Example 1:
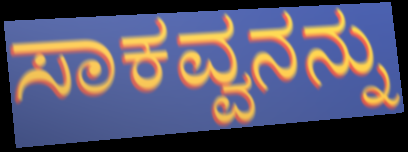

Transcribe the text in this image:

ಸಾಕವ್ವನನ್ನು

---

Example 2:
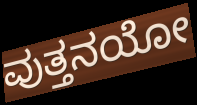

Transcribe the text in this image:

ವುತ್ತನಯೋ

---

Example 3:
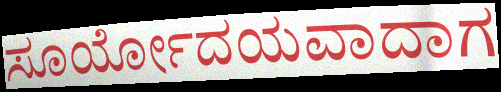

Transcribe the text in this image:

ಸೂರ್ಯೋದಯವಾದಾಗ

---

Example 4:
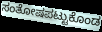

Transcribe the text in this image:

ಸಂತೋಷಪಟ್ಟುಕೊಂಡ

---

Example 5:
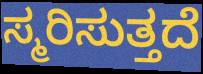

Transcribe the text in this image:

ಸ್ಮರಿಸುತ್ತದೆ